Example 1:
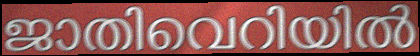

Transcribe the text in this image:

ജാതിവെറിയിൽ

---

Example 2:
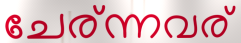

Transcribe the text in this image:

ചേര്ന്നവര്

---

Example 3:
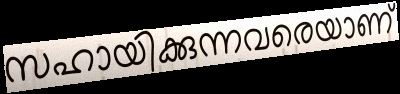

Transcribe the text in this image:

സഹായിക്കുന്നവരെയാണ്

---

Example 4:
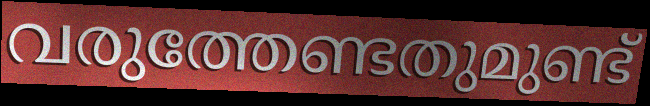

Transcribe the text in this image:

വരുത്തേണ്ടതുമുണ്ട്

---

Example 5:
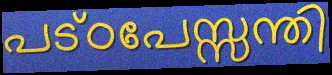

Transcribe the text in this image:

പട്ഠപേസ്സന്തി